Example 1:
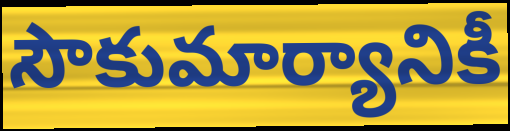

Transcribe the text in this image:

సౌకుమార్యానికీ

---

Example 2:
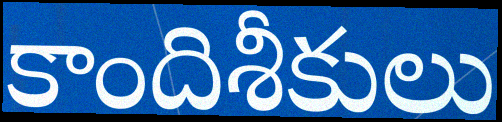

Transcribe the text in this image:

కాందిశీకులు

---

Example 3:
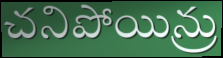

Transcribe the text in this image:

చనిపోయిన్రు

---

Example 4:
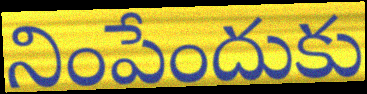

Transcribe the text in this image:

నింపేందుకు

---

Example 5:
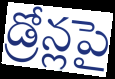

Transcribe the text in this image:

డ్రోన్లపై